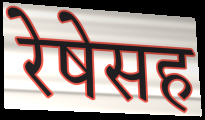
रेषेसह